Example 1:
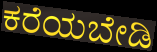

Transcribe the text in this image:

ಕರೆಯಬೇಡಿ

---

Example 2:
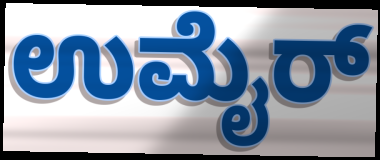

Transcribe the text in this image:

ಉಮೈರ್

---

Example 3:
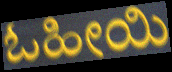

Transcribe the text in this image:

ಓಹೀಯಿ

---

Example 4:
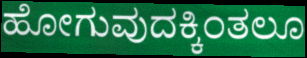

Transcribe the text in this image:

ಹೋಗುವುದಕ್ಕಿಂತಲೂ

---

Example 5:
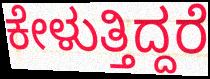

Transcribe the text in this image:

ಕೇಳುತ್ತಿದ್ದರೆ